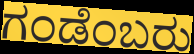
ಗಂಡೆಂಬರು